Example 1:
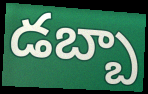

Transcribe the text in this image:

డబ్బా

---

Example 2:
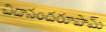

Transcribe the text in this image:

చిదానందరూపామ్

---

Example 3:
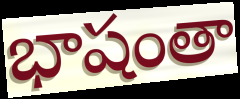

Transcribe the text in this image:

భాషంతా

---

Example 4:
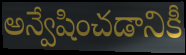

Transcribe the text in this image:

అన్వేషించడానికీ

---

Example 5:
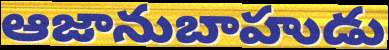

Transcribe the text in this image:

ఆజానుబాహుడు